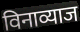
विनाव्याज